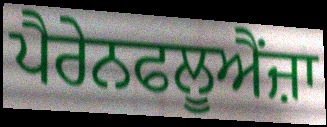
ਪੈਰੇਨਫਲੂਐਂਜ਼ਾ